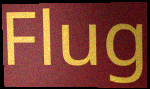
Flug